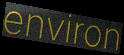
environ